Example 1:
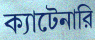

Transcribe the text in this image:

ক্যাটেনারি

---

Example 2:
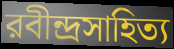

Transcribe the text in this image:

রবীন্দ্রসাহিত্য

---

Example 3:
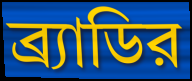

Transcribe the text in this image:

ব্র্যাডির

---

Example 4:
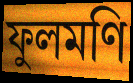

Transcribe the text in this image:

ফুলমণি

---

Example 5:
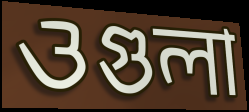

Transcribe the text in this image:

ওগুলা